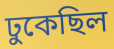
ঢুকেছিল